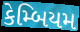
કેમ્બિયમ